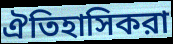
ঐতিহাসিকরা